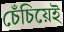
চেঁচিয়েই